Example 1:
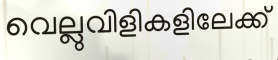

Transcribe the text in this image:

വെല്ലുവിളികളിലേക്ക്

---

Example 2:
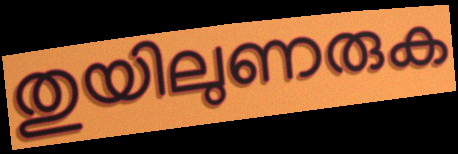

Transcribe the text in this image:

തുയിലുണരുക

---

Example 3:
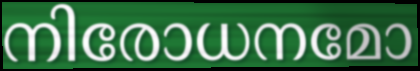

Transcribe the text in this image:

നിരോധനമോ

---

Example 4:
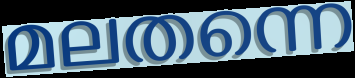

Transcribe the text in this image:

മലതന്നെ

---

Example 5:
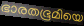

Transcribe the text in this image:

ഭാരതഭൂമിയെ